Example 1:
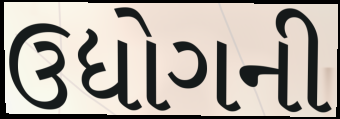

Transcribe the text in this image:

ઉદ્યોગની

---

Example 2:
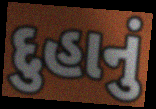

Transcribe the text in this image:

દુહાનું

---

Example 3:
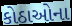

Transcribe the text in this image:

કોઠાઓના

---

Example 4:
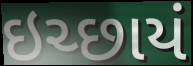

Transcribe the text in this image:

ઇચ્છાયં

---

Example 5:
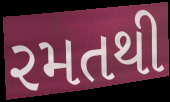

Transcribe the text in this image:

રમતથી